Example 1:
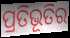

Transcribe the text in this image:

ପ୍ରତିଭୂତିର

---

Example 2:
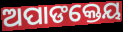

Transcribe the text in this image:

ଅପାଙକ୍ତେୟ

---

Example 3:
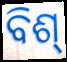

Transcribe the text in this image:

ବିଶ୍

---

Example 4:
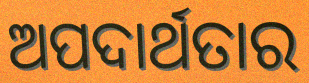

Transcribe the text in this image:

ଅପଦାର୍ଥତାର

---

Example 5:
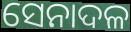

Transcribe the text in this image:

ସେନାଦଳ